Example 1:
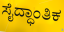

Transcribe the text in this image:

ಸೈದ್ಧಾಂತಿಕ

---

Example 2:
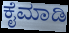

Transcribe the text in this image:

ಕೈಮಾಡಿ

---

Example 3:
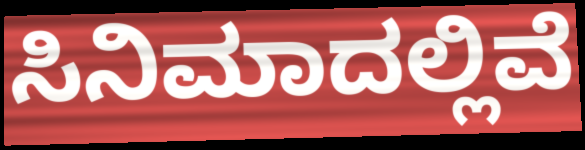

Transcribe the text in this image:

ಸಿನಿಮಾದಲ್ಲಿವೆ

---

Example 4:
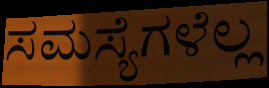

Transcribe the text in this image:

ಸಮಸ್ಯೆಗಳೆಲ್ಲ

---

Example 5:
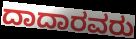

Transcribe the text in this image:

ದಾದಾರವರು